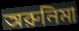
অরুনিমা